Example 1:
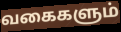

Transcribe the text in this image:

வகைகளும்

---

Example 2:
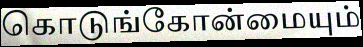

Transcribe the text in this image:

கொடுங்கோன்மையும்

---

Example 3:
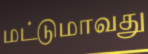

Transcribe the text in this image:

மட்டுமாவது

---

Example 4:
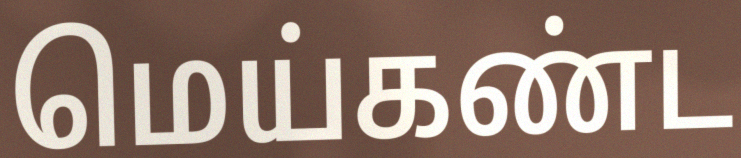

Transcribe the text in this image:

மெய்கண்ட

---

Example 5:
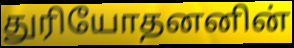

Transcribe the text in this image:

துரியோதனனின்